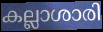
കല്ലാശാരി